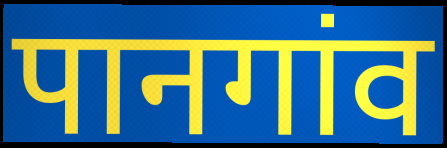
पानगांव